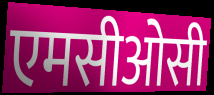
एमसीओसी